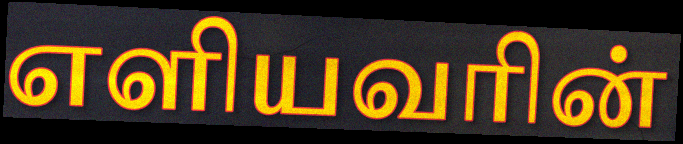
எளியவரின்